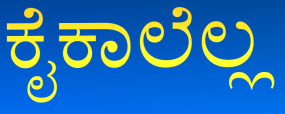
ಕೈಕಾಲೆಲ್ಲ